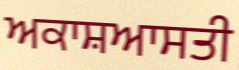
ਅਕਾਸ਼ਆਸਤੀ